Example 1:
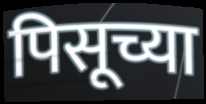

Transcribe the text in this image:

पिसूच्या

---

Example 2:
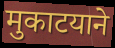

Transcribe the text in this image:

मुकाटयाने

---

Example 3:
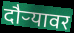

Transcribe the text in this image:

दौऱ्यावर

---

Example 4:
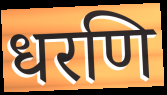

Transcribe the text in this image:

धरणि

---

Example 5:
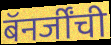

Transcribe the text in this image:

बॅनर्जींची